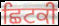
ਛਿਟਕੀ